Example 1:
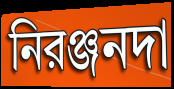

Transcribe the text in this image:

নিরঞ্জনদা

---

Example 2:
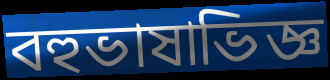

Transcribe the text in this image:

বহুভাষাভিজ্ঞ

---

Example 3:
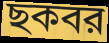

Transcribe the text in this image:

ছকবর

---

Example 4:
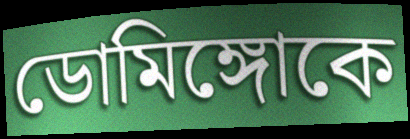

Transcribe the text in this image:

ডোমিঙ্গোকে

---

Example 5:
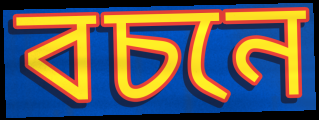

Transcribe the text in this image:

বচনে